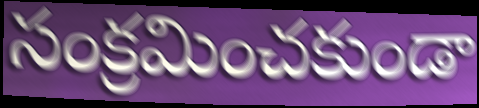
సంక్రమించకుండా